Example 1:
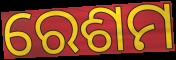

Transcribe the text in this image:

ରେଶମ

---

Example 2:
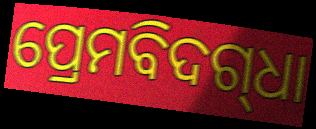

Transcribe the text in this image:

ପ୍ରେମବିଦଗ୍‍ଧା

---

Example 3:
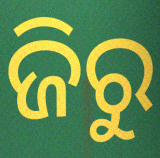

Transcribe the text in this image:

ଜିରୁ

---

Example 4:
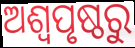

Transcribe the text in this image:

ଅଶ୍ଵପୃଷ୍ଠରୁ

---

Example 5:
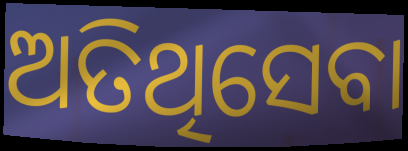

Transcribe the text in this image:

ଅତିଥିସେବା